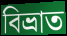
বিভ্ৰাত